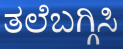
ತಲೆಬಗ್ಗಿಸಿ